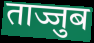
ताज्जुब